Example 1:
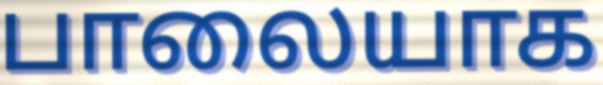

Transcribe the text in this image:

பாலையாக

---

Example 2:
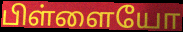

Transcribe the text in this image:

பிள்ளையோ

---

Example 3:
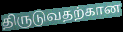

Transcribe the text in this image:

திருடுவதற்கான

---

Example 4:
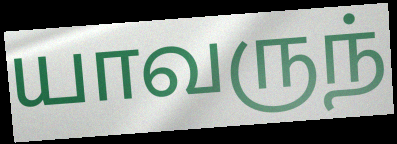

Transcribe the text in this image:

யாவருந்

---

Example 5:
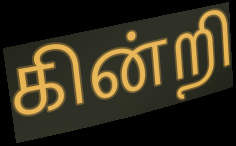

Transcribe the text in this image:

கின்றி